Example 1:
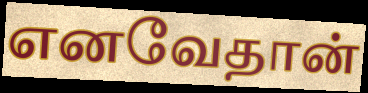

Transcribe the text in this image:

எனவேதான்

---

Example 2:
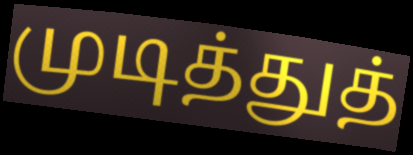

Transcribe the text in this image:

முடித்துத்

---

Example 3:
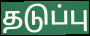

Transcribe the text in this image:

தடுப்பு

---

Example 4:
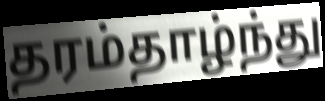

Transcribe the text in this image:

தரம்தாழ்ந்து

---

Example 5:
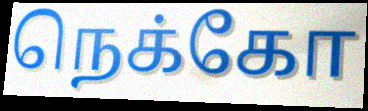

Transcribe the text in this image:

நெக்கோ